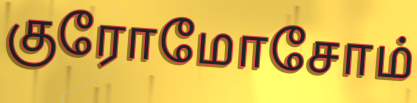
குரோமோசோம்